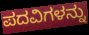
ಪದವಿಗಳನ್ನು